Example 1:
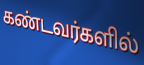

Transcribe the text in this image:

கண்டவர்களில்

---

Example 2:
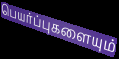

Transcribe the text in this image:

பெயர்ப்புகளையும்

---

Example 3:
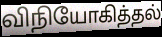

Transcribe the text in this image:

விநியோகித்தல்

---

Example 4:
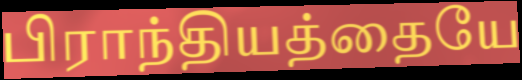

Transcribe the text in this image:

பிராந்தியத்தையே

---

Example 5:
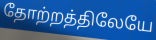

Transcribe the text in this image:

தோற்றத்திலேயே